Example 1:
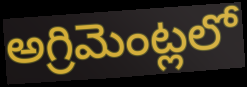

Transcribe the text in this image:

అగ్రిమెంట్లలో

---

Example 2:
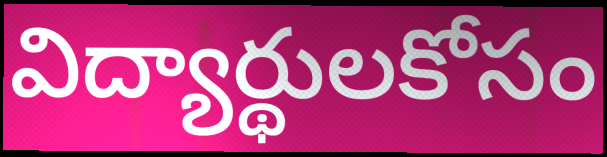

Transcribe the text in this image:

విద్యార్థులకోసం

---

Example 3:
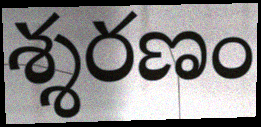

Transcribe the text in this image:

శ్శరణం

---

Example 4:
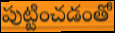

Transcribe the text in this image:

పుట్టించడంతో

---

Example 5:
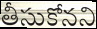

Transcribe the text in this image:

తీసుకోనని